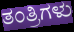
ತಂತ್ರಿಗಳು